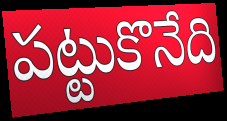
పట్టుకొనేది